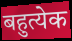
बहुत्येक